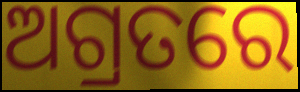
ଅଗ୍ରତରେ